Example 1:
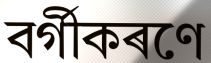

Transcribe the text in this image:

বৰ্গীকৰণে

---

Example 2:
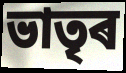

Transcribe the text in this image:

ভাতৃৰ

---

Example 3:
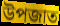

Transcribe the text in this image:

উপজাত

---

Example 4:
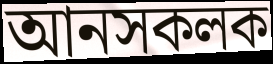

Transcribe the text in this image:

আনসকলক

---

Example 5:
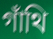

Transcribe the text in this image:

গাঁথি